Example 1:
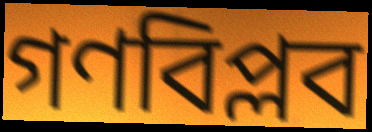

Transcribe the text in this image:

গণবিপ্লব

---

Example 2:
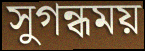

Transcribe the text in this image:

সুগন্ধময়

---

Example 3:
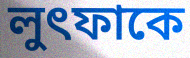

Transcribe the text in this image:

লুৎফাকে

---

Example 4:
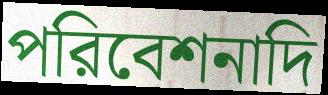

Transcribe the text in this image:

পরিবেশনাদি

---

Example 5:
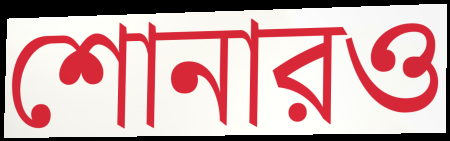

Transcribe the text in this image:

শোনারও